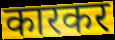
कारकर